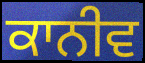
ਕਾਨੀਵ